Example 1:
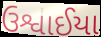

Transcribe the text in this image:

ઉશ્વાઈયા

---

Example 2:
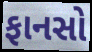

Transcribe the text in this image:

ફાનસો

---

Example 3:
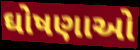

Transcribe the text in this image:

ઘોષણાઓ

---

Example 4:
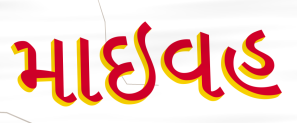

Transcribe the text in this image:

માઇવહ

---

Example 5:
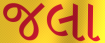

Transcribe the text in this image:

જલા